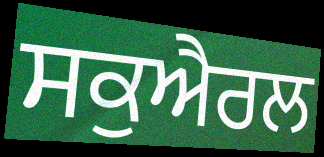
ਸਕੁਐਰਲ